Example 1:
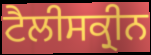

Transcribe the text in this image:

ਟੈਲੀਸਕ੍ਰੀਨ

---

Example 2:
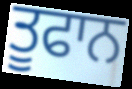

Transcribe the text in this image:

ਤੂਫਾਨ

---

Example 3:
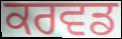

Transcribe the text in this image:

ਕਰਵਡ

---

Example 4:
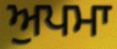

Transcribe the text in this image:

ਅੁਪਮਾ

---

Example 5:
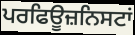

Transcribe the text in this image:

ਪਰਫਿਊਜ਼ਨਿਸਟਾਂ